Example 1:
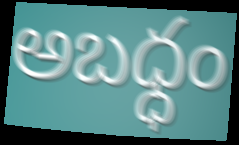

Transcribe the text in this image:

అబధ్ధం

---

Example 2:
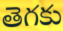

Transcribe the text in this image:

తెగకు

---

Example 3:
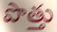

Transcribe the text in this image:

పొత్తు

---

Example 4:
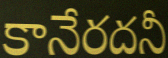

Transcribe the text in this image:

కానేరదనీ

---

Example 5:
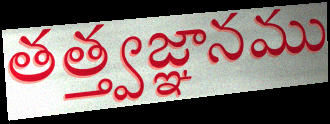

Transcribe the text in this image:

తత్త్వజ్ఞానము